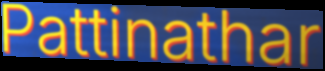
Pattinathar